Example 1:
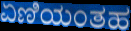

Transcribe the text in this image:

ಏಣಿಯಂತಹ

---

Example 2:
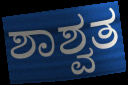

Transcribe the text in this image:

ಶಾಶ್ವತ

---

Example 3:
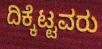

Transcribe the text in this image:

ದಿಕ್ಕೆಟ್ಟವರು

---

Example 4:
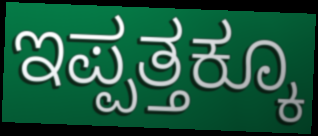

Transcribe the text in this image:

ಇಪ್ಪತ್ತಕ್ಕೂ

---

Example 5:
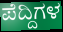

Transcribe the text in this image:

ಪೆದ್ದಿಗಳ